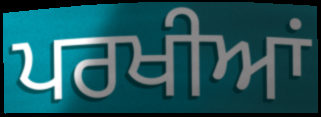
ਪਰਖੀਆਂ